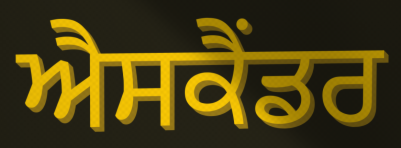
ਐਸਕੈਂਡਰ